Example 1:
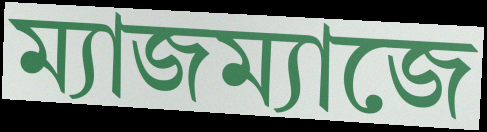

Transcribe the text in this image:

ম্যাজম্যাজে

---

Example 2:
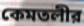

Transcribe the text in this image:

কেমতলীর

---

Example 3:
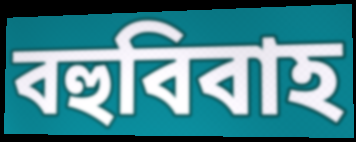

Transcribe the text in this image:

বহুবিবাহ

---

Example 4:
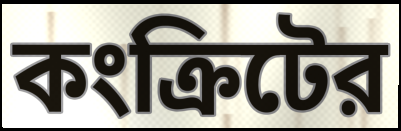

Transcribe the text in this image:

কংক্রিটের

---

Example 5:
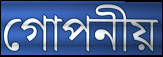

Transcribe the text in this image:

গোপনীয়